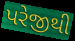
પરેજીથી